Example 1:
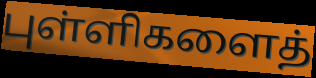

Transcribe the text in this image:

புள்ளிகளைத்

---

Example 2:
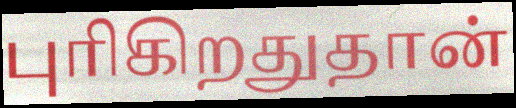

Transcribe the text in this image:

புரிகிறதுதான்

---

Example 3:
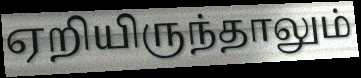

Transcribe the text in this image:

ஏறியிருந்தாலும்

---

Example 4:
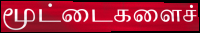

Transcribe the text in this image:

மூட்டைகளைச்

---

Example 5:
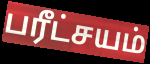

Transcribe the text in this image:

பரீட்சயம்